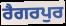
ਰੈਗਰਪੁਰ